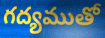
గద్యముతో